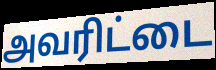
அவரிட்டை